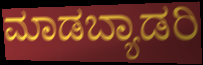
ಮಾಡಬ್ಯಾಡರಿ